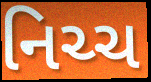
નિચ્ચ